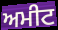
ਅਮੀਟ